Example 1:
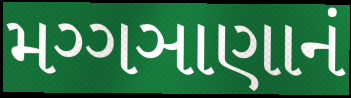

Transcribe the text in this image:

મગ્ગઞાણાનં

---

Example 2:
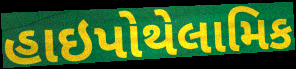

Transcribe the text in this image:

હાઇપોથેલામિક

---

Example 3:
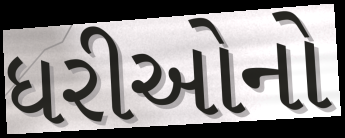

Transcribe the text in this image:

ધરીઓનો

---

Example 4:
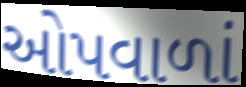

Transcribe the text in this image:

ઓપવાળાં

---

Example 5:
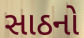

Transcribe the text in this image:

સાઠનો